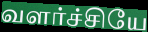
வளர்ச்சியே